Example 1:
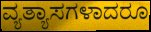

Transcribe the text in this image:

ವ್ಯತ್ಯಾಸಗಳಾದರೂ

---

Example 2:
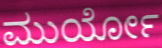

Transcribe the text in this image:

ಮುರ್ಯೋ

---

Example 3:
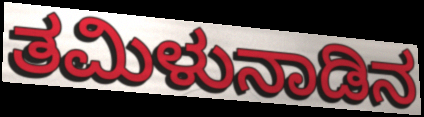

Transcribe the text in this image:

ತಮಿಳುನಾಡಿನ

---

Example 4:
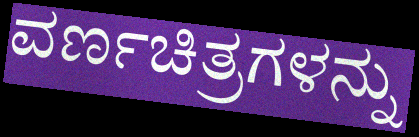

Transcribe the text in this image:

ವರ್ಣಚಿತ್ರಗಳನ್ನು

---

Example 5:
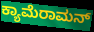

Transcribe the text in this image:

ಕ್ಯಾಮೆರಾಮನ್